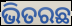
ଭିତରଛ